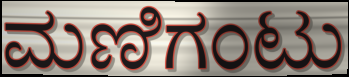
ಮಣಿಗಂಟು